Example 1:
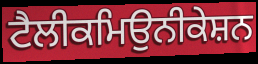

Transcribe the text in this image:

ਟੈਲੀਕਮਿਉਨੀਕੇਸ਼ਨ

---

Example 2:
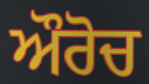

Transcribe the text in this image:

ਔਰੋਚ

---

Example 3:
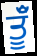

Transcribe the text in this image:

ਤੂੰਁ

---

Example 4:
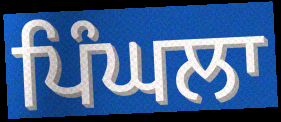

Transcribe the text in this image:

ਪਿੰਘਲਾ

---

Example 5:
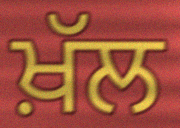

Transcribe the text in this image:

ਖ਼ੱਲ